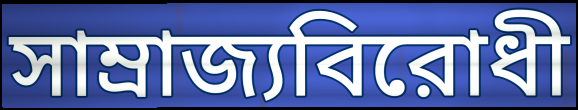
সাম্রাজ্যবিরোধী